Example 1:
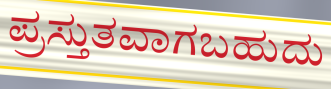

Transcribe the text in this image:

ಪ್ರಸ್ತುತವಾಗಬಹುದು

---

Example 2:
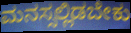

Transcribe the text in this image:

ಮನಸ್ಸಲ್ಲಿಡಬೇಕು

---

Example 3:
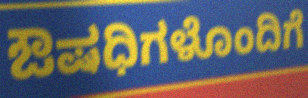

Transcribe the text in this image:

ಔಷಧಿಗಳೊಂದಿಗೆ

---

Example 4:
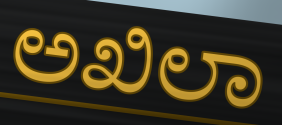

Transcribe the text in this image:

ಅಖಿಲಾ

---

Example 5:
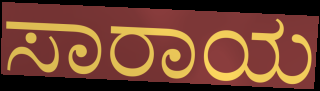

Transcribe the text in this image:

ಸಾರಾಯ